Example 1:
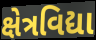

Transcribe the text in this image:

ક્ષેત્રવિદ્યા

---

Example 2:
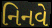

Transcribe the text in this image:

નિનવે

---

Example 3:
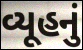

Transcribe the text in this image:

વ્યૂહનું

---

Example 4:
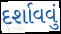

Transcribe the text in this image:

દર્શાવવું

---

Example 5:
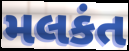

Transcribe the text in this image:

મલકંત